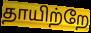
தாயிற்றே